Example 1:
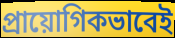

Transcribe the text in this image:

প্রায়োগিকভাবেই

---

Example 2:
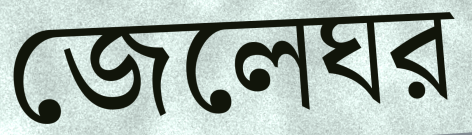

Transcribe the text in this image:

জেলেঘর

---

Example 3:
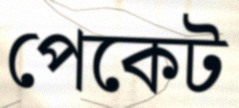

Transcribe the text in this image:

পেকেট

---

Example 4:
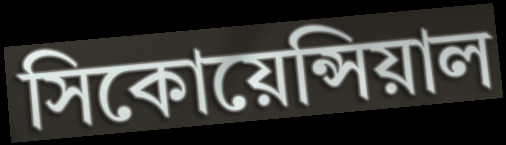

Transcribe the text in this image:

সিকোয়েন্সিয়াল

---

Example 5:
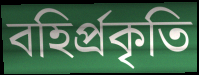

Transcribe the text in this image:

বহির্প্রকৃতি